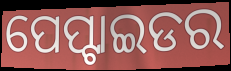
ପେପ୍ଟାଇଡର